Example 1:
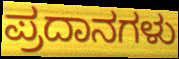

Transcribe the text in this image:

ಪ್ರದಾನಗಳು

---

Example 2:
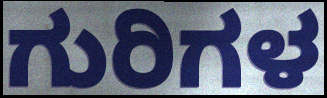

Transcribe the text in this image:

ಗುರಿಗಳ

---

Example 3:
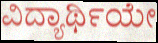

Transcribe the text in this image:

ವಿದ್ಯಾರ್ಥಿಯೇ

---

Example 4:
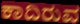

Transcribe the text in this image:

ಕಾದಿರುವ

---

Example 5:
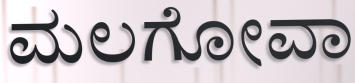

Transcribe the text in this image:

ಮಲಗೋವಾ